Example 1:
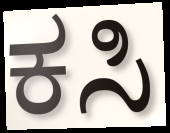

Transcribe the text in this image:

ಕಸಿ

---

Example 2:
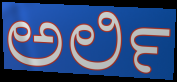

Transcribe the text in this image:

ಅರ್ಲಿ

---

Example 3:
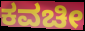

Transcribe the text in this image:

ಕವಚೀ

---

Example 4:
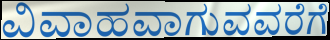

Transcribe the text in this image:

ವಿವಾಹವಾಗುವವರೆಗೆ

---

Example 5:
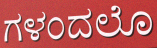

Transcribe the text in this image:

ಗಳಂದಲೊ